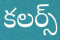
కలర్స్